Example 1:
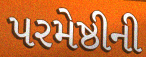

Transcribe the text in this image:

પરમેષ્ઠીની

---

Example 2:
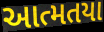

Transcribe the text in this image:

આત્મતયા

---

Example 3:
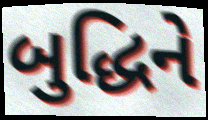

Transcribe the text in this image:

બુદ્ધિને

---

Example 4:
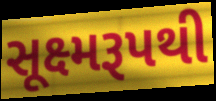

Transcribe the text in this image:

સૂક્ષ્મરૂપથી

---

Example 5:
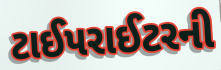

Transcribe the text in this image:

ટાઈપરાઈટરની